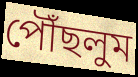
পৌঁছলুম